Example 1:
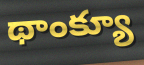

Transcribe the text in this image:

థాంక్యూ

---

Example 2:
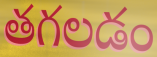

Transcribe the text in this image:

తగలడం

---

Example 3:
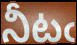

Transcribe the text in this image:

నీటఁ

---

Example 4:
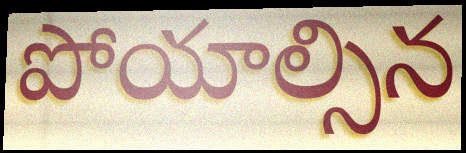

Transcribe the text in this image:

పోయాల్సిన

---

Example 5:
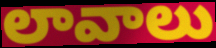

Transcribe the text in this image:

లావాలు